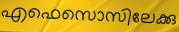
എഫെസൊസിലേക്കു